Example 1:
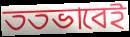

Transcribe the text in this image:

ততভাবেই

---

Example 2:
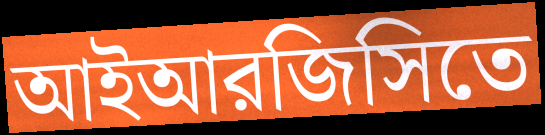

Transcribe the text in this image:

আইআরজিসিতে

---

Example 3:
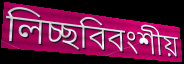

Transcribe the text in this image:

লিচ্ছবিবংশীয়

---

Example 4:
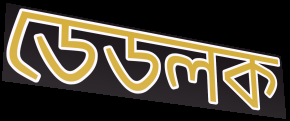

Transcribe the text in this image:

ডেডলক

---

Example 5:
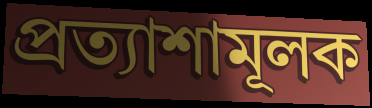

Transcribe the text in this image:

প্রত্যাশামূলক